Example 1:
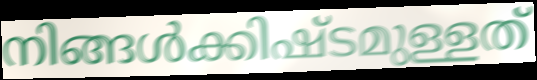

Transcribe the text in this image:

നിങ്ങൾക്കിഷ്ടമുള്ളത്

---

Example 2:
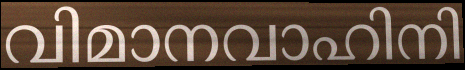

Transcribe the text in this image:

വിമാനവാഹിനി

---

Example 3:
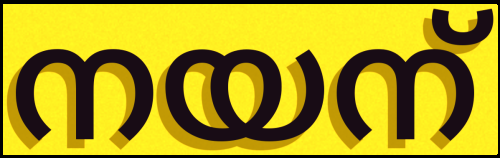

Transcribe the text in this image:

നയന്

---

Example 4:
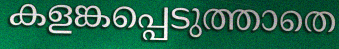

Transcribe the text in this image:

കളങ്കപ്പെടുത്താതെ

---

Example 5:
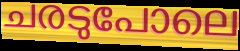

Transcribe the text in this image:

ചരടുപോലെ